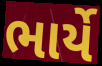
ભાર્યે